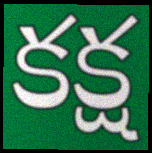
కక్ష